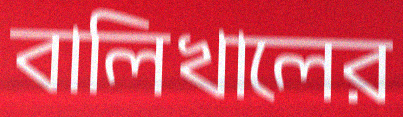
বালিখালের